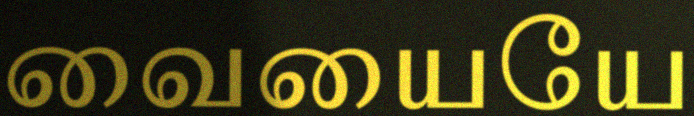
வையையே